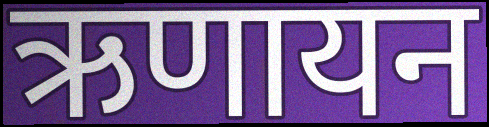
ऋणायन